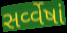
સર્વ્વેષાં